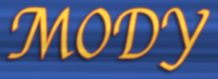
MODY